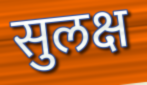
सुलक्ष